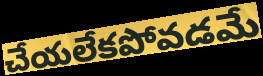
చేయలేకపోవడమే